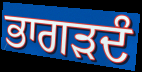
ਭਾਗੜਦੰ